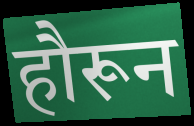
हौरून